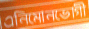
এনিমোনভোগী